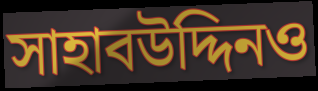
সাহাবউদ্দিনও